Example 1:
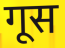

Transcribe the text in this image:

गूस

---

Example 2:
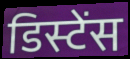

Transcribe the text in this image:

डिस्टेंस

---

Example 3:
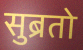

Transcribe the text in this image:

सुब्रतो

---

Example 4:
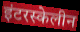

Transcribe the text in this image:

इंटरस्केलीन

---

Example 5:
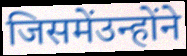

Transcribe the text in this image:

जिसमेंउन्होंने